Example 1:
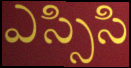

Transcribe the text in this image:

ఎస్సిసి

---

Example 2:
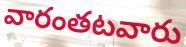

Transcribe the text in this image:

వారంతటవారు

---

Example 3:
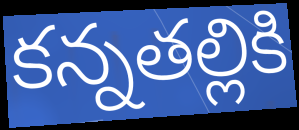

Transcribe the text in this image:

కన్నతల్లికి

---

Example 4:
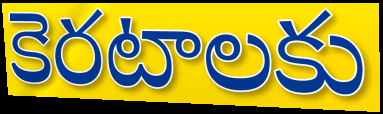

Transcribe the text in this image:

కెరటాలకు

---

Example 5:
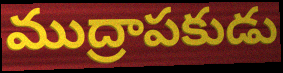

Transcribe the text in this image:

ముద్రాపకుడు